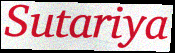
Sutariya